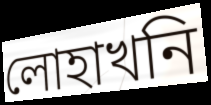
লোহাখনি